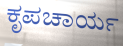
ಕೃಪಚಾರ್ಯ